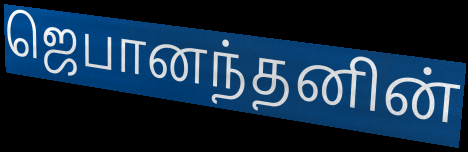
ஜெபானந்தனின்